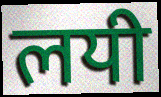
लयी